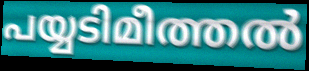
പയ്യടിമീത്തൽ